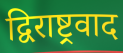
द्विराष्ट्रवाद